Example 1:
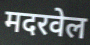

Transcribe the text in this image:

मदरवेल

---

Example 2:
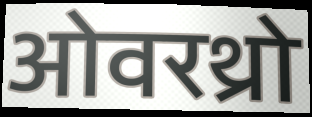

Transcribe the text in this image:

ओवरथ्रो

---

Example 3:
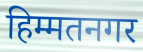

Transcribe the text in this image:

हिम्मतनगर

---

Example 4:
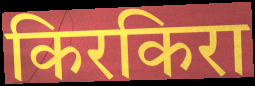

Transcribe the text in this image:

किरकिरा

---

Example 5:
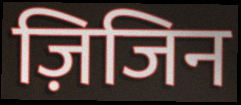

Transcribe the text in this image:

ज़िजिन